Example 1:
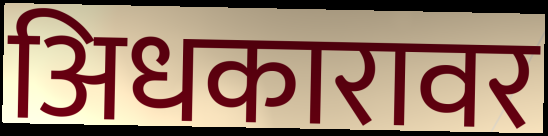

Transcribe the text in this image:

अिधकारावर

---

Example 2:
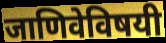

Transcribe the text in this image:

जाणिवेविषयी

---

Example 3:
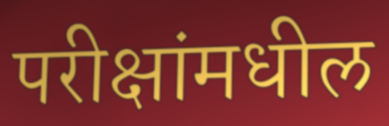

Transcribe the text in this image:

परीक्षांमधील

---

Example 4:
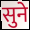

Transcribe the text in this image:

सुने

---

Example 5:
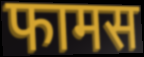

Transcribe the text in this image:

फामस